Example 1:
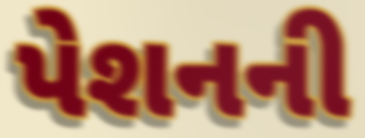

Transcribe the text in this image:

પેશનની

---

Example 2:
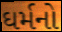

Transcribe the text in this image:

ઘર્મનો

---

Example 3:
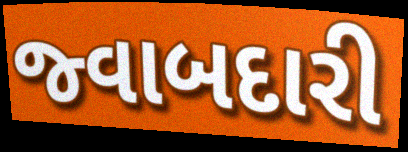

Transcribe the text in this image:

જ્વાબદારી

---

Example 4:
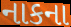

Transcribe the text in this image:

નાકના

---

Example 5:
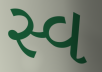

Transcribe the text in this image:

સ્વ